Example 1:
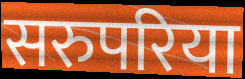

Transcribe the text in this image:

सरुपरिया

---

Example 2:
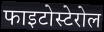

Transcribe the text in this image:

फाइटोस्टेरोल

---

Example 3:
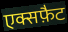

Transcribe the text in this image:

एक्सफ़ैट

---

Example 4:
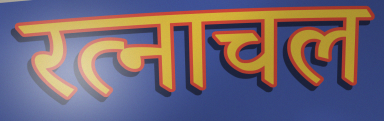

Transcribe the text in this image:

रत्नाचल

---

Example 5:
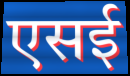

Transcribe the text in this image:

एसई